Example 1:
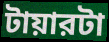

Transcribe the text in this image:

টায়ারটা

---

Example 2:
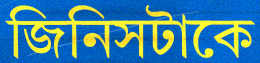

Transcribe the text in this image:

জিনিসটাকে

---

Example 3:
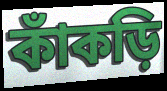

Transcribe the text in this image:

কাঁকড়ি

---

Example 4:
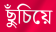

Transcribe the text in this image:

ছুঁচিয়ে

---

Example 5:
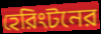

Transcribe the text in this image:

হেরিংটনের